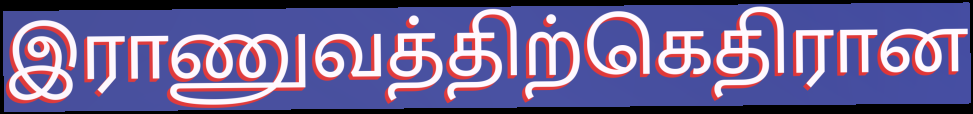
இராணுவத்திற்கெதிரான